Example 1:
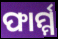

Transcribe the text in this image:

ଫାର୍ମ୍ମ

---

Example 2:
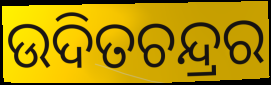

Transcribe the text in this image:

ଉଦିତଚନ୍ଦ୍ରର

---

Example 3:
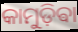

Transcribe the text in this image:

କାମୁଡ଼ିଵା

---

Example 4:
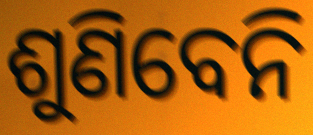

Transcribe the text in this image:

ଶୁଣିବେନି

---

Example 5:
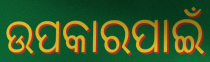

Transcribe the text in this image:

ଉପକାରପାଇଁ